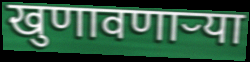
खुणावणाऱ्या